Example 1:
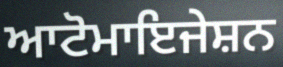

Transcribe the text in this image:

ਆਟੋਮਾਇਜੇਸ਼ਨ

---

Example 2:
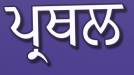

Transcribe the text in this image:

ਪ੍ਰਥਲ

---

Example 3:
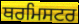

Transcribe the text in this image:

ਥਰਮਿਸਟਰ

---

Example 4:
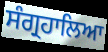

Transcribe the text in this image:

ਸੰਗ੍ਰਹਾਲਿਆ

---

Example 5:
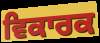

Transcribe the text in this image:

ਵਿਕਾਰਕ